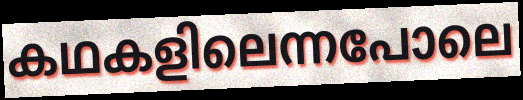
കഥകളിലെന്നപോലെ